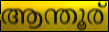
ആന്തൂര്